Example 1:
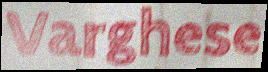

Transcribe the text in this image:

Varghese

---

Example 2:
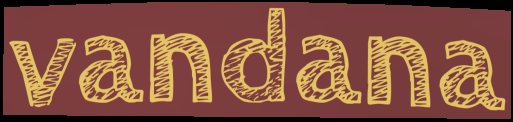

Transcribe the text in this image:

vandana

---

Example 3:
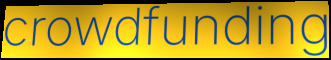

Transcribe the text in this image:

crowdfunding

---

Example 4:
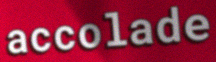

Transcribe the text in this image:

accolade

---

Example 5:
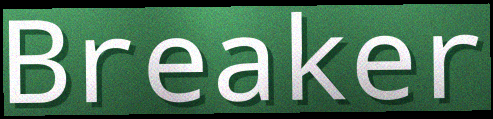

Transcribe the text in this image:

Breaker